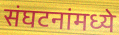
संघटनांमध्ये